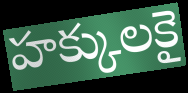
హక్కులకై